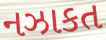
નઝાકત